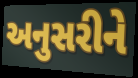
અનુસરીને